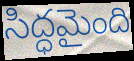
సిద్ధమైంది